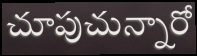
చూపుచున్నారో